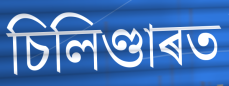
চিলিণ্ডাৰত